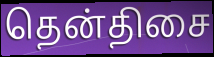
தென்திசை